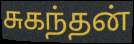
சுகந்தன்